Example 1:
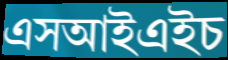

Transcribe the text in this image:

এসআইএইচ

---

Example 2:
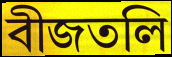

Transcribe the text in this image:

বীজতলি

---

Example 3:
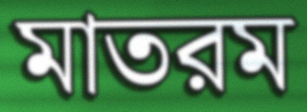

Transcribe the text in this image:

মাতরম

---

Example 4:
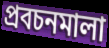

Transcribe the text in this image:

প্রবচনমালা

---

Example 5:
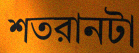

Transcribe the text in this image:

শতরানটা